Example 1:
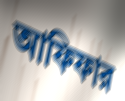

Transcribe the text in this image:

আফিফার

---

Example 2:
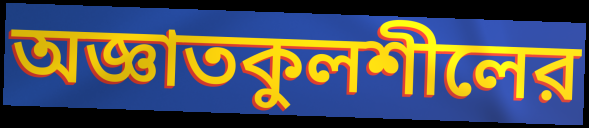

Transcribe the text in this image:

অজ্ঞাতকুলশীলের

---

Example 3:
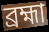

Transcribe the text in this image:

ব্রহ্মা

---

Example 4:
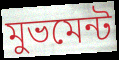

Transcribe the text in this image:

মুভমেন্ট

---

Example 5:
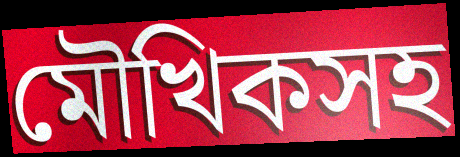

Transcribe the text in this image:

মৌখিকসহ